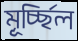
মূর্চ্ছিল